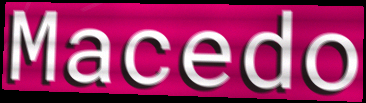
Macedo